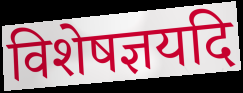
विशेषज्ञयदि